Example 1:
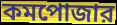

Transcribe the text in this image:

কমপোজার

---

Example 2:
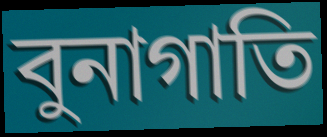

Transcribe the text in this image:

বুনাগাতি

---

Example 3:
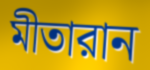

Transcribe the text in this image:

মীতারান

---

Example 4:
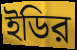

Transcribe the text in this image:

ইডির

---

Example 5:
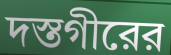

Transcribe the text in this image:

দস্তগীরের